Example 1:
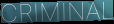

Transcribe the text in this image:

CRIMINAL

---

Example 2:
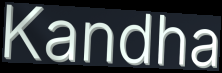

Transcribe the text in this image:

Kandha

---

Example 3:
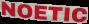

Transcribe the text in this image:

NOETIC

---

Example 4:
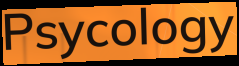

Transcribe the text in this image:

Psycology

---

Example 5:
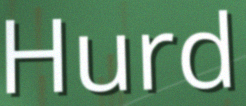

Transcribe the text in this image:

Hurd